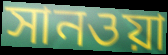
সানওয়া